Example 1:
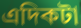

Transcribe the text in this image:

এদিকটা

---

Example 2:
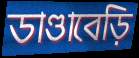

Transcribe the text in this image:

ডাণ্ডাবেড়ি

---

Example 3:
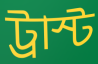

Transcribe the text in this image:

ট্রাস্ট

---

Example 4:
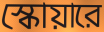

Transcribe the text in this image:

স্কোয়ারে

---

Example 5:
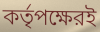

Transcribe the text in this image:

কর্তৃপক্ষেরই